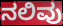
ನಲಿವು